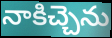
నాకిచ్చెను